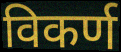
विकर्ण